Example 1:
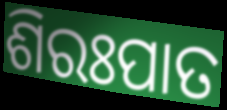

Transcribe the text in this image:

ଶିରଃପାତ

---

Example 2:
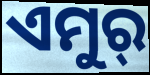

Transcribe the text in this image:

ଏମୁର୍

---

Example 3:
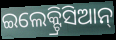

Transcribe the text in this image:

ଇଲେକ୍ଟ୍ରିସିଆନ୍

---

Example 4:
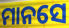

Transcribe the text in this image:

ମାନସେ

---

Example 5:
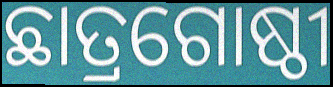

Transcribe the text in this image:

ଛାତ୍ରଗୋଷ୍ଠୀ